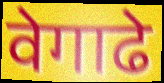
वेगाढे